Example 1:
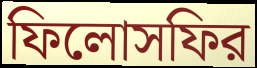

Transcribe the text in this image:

ফিলোসফির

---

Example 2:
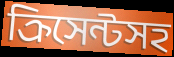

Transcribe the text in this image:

ক্রিসেন্টসহ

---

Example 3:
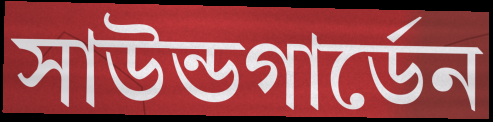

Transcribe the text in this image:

সাউন্ডগার্ডেন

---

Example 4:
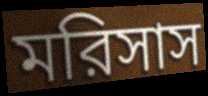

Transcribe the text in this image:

মরিসাস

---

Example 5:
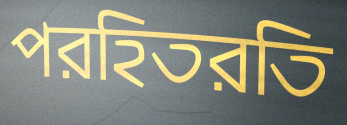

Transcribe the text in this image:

পরহিতরতি